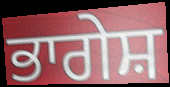
ਭਾਗੇਸ਼